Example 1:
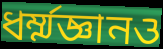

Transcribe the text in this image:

ধর্ম্মজ্ঞানও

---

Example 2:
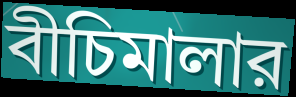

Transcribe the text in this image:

বীচিমালার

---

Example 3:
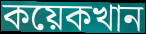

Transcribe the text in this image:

কয়েকখান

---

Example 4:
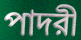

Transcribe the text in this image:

পাদরী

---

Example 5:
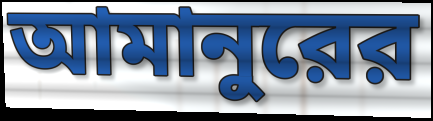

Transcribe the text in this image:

আমানুরের